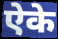
ऐके